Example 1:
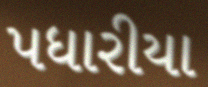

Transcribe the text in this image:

પધારીયા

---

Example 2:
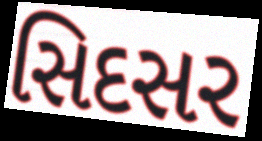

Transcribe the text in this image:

સિદસર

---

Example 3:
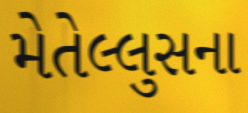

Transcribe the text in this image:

મેતેલ્લુસના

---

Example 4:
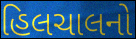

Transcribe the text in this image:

હિલચાલનો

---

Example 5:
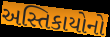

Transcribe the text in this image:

અસ્તિકાયોનો